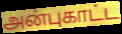
அன்புகாட்ட